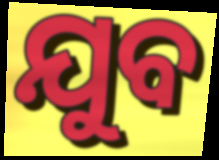
ଯୁବ